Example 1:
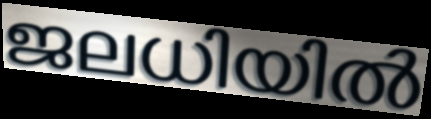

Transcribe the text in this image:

ജലധിയിൽ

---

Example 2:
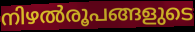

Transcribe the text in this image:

നിഴൽരൂപങ്ങളുടെ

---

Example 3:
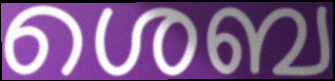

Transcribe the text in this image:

ശെബ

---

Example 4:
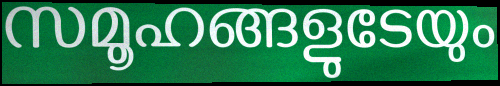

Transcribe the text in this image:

സമൂഹങ്ങളുടേയും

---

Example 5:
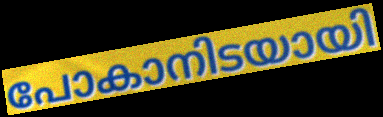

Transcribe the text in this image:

പോകാനിടയായി